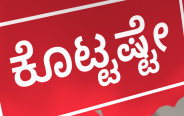
ಕೊಟ್ಟಷ್ಟೇ